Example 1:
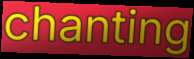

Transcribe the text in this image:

chanting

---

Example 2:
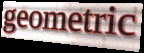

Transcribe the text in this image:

geometric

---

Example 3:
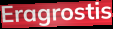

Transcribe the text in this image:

Eragrostis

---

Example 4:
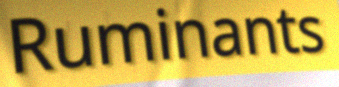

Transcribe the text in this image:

Ruminants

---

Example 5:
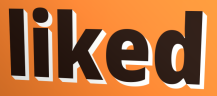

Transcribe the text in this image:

liked